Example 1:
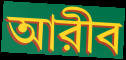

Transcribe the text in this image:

আরীব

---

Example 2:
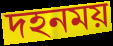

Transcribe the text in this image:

দহনময়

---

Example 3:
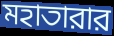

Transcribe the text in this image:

মহাতারার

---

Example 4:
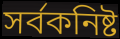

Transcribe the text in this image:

সর্বকনিষ্ট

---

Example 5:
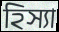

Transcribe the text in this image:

হিস্যা